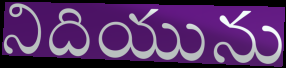
నిదియును